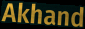
Akhand